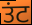
उंट